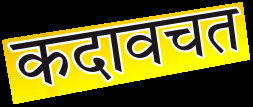
कदावचत